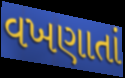
વખણાતાં